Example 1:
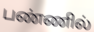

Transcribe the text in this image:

பண்ணில்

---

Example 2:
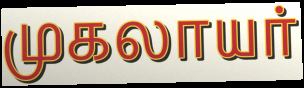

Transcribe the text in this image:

முகலாயர்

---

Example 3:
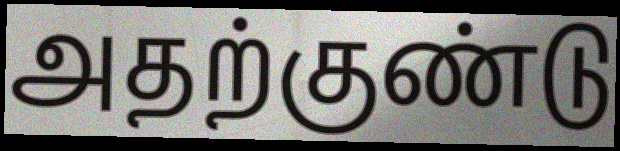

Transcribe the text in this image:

அதற்குண்டு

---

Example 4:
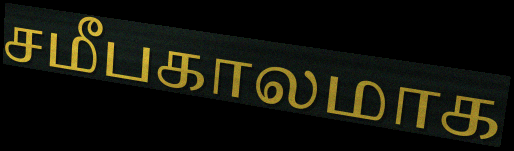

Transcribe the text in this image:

சமீபகாலமாக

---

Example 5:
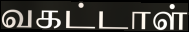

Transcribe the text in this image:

வகட்டாள்